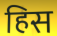
हिस